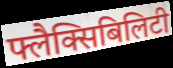
फ्लैक्सिबिलिटी